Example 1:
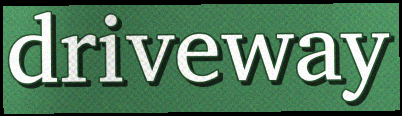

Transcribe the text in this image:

driveway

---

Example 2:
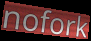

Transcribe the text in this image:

nofork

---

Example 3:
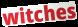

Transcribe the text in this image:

witches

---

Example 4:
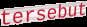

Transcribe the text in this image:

tersebut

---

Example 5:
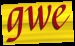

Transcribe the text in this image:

gwe